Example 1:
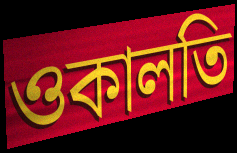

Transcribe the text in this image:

ওকালতি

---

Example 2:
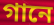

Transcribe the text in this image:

গানে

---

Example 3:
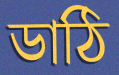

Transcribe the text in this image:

ডাঠি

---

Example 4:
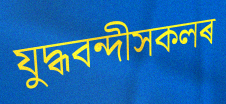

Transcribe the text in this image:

যুদ্ধবন্দীসকলৰ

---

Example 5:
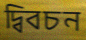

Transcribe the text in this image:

দ্বিবচন